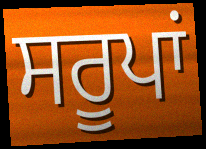
ਸਰੂਪਾਂ